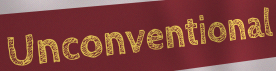
Unconventional